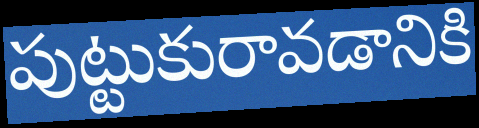
పుట్టుకురావడానికి